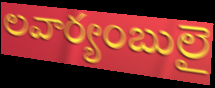
లవార్యంబులై